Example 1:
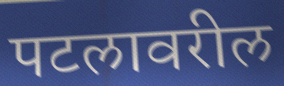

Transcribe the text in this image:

पटलावरील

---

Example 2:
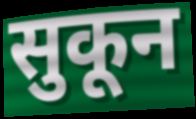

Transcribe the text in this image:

सुकून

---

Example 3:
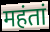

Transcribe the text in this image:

महंतां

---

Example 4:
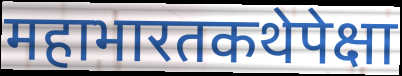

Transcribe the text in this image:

महाभारतकथेपेक्षा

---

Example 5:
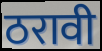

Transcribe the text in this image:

ठरावी